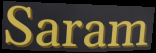
Saram